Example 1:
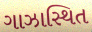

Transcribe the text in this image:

ગાઝાસ્થિત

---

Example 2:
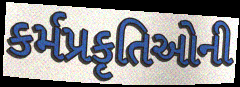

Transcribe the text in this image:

કર્મપ્રકૃતિઓની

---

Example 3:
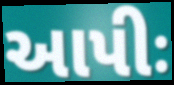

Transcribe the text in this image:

આપીઃ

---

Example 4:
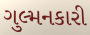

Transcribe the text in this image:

ગુલ્મનકારી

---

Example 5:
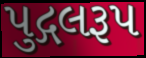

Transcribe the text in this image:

પુદ્ગલરૂપ